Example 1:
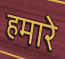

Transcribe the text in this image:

हमारे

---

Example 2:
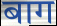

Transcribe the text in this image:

बाग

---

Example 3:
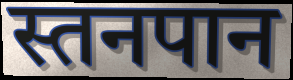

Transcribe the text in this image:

स्तनपान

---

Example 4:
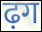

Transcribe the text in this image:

ढ़ग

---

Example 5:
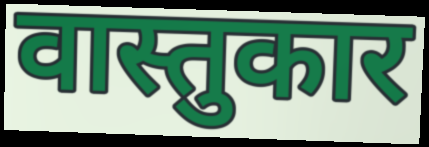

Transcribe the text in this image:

वास्तुकार